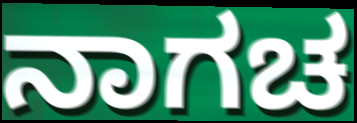
ನಾಗಚ